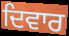
ਦਿਵਾਰ